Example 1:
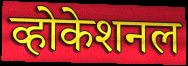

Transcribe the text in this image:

व्होकेशनल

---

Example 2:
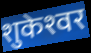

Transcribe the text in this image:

शुकेश्वर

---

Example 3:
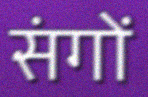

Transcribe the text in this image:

संगों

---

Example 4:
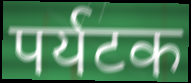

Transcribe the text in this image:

पर्यटक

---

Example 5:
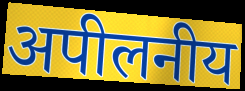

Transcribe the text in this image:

अपीलनीय